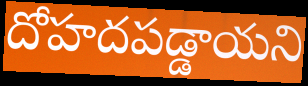
దోహదపడ్డాయని